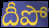
దీపో